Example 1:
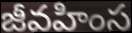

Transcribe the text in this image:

జీవహింస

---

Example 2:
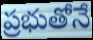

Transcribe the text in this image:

ప్రభుతోనే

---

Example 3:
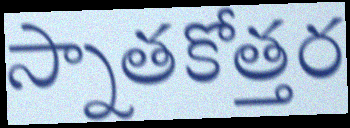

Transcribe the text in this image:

స్నాతకోత్తర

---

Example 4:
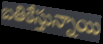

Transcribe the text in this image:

బతికేస్తున్నాయి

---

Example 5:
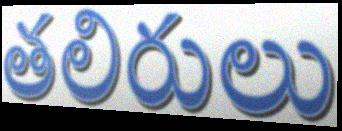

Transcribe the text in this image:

తలిరులు